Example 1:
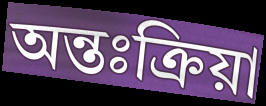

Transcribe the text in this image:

অন্তঃক্রিয়া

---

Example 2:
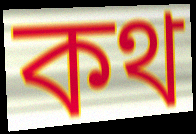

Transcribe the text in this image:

কথ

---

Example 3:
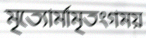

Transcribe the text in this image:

মৃত্যোর্মামৃতংগময়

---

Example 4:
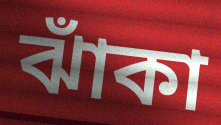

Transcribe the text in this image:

ঝাঁকা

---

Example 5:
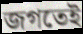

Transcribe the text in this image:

জগতেই